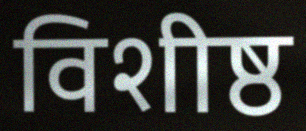
विशीष्ठ